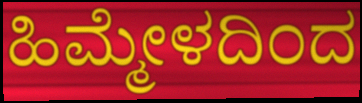
ಹಿಮ್ಮೇಳದಿಂದ